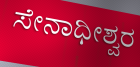
ಸೇನಾಧೀಶ್ವರ